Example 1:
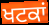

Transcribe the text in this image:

ਖਟਕਾਂ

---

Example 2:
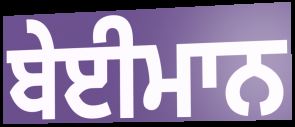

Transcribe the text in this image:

ਬੇਈਮਾਨ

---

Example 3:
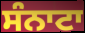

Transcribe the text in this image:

ਸੰਨਾਟਾ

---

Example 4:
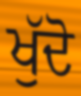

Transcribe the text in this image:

ਖੁੱਦੋ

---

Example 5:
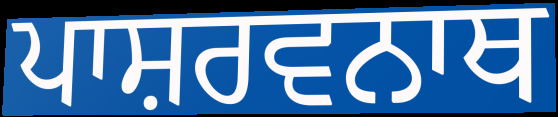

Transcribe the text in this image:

ਪਾਸ਼ਰਵਨਾਥ